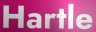
Hartle